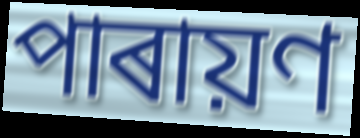
পাৰায়ণ